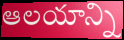
ఆలయాన్ని